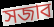
সজাব